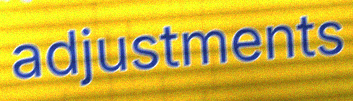
adjustments